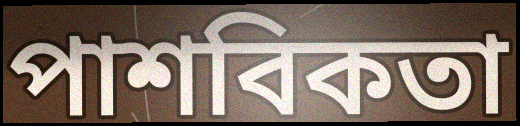
পাশবিকতা